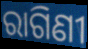
ରାଗିଣୀ